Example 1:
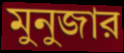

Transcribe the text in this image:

মুনুজার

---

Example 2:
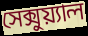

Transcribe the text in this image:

সেক্সুয়্যাল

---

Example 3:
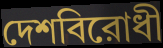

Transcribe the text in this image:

দেশবিরোধী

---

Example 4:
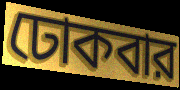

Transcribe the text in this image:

ঢোকবার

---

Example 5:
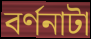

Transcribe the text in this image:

বর্ণনাটা